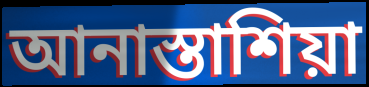
আনাস্তাশিয়া